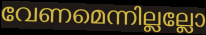
വേണമെന്നില്ലല്ലോ